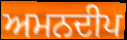
ਅਮਨਦੀਪ